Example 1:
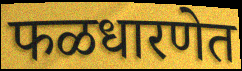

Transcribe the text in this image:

फळधारणेत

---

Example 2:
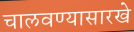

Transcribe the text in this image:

चालवण्यासारखे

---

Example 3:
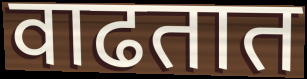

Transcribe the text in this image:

वाढतात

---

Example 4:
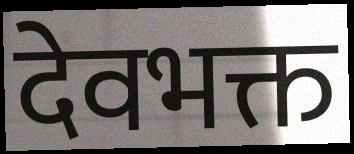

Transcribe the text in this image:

देवभक्त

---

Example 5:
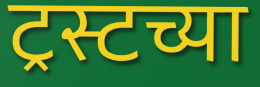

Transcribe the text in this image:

ट्रस्टच्या